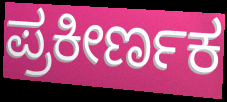
ಪ್ರಕೀರ್ಣಕ